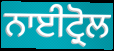
ਨਾਈਟ੍ਰੋਲ